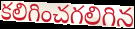
కలిగించగలిగిన